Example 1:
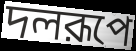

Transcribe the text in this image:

দলরূপে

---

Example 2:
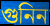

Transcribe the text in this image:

গুনিন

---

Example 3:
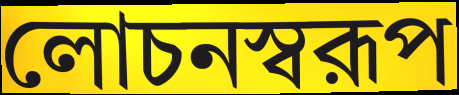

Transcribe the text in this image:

লোচনস্বরূপ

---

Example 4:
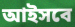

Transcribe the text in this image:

আইসবে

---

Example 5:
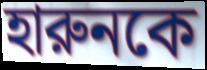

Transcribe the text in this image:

হারুনকে